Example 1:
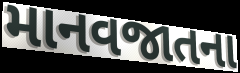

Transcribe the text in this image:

માનવજાતના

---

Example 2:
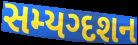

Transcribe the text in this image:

સમ્યગ્દશન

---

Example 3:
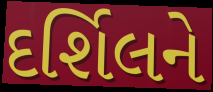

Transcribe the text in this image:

દર્શિલને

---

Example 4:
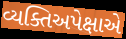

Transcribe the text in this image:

વ્યક્તિઅપેક્ષાએ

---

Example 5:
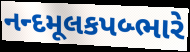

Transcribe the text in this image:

નન્દમૂલકપબ્ભારે